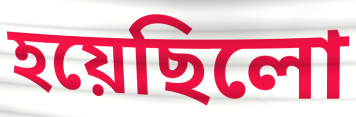
হয়েছিলো